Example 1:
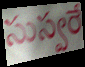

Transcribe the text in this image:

సుస్వరే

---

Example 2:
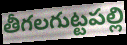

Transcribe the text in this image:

తీగలగుట్టపల్లి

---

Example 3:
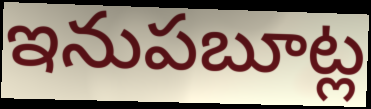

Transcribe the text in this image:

ఇనుపబూట్ల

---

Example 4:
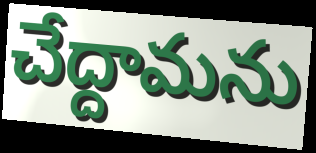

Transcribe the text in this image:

చేద్దామను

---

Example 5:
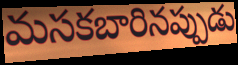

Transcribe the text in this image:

మసకబారినప్పుడు